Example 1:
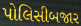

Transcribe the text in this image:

પોલિસીબજાર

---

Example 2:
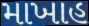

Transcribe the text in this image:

માખાહ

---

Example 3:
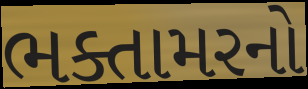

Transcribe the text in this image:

ભક્તામરનો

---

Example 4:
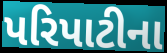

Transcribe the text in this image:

પરિપાટીના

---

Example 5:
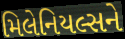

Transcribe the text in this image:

મિલેનિયલ્સને